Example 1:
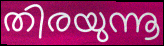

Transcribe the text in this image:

തിരയുന്നൂ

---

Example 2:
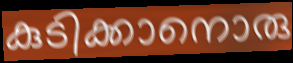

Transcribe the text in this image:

കുടിക്കാനൊരു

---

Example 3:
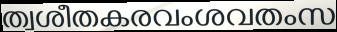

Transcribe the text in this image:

ത്വശീതകരവംശവതംസ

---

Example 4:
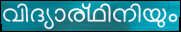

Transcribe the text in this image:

വിദ്യാര്ഥിനിയും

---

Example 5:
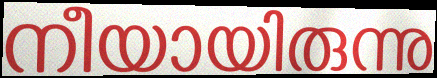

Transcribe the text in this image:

നീയായിരുന്നു